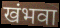
खंभवा